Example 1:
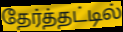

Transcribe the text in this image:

தேர்த்தட்டில்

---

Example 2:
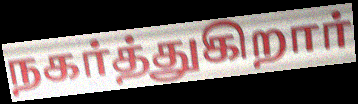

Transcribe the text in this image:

நகர்த்துகிறார்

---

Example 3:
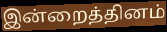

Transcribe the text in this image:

இன்றைத்தினம்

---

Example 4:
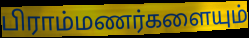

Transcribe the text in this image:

பிராம்மணர்களையும்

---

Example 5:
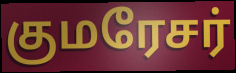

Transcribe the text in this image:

குமரேசர்